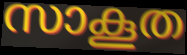
സാകൂത